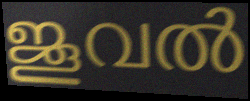
ജൂവൽ